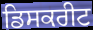
ਡਿਸਕਰੀਟ